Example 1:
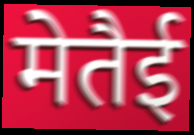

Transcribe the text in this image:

मेतैई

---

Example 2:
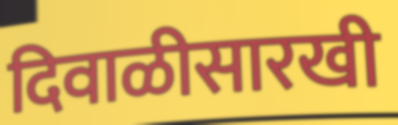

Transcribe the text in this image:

दिवाळीसारखी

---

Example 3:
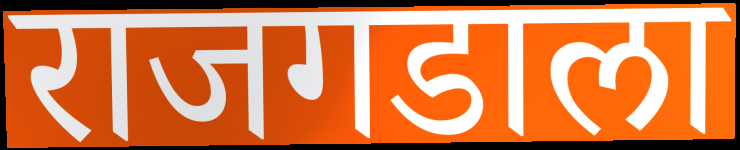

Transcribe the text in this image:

राजगडाला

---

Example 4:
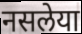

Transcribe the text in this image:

नसलेया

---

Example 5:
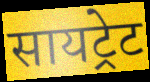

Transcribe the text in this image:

सायट्रेट